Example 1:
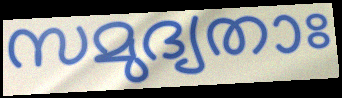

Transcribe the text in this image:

സമുദ്യതാഃ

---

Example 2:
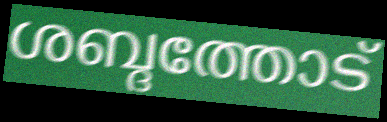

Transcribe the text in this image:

ശബ്ദത്തോട്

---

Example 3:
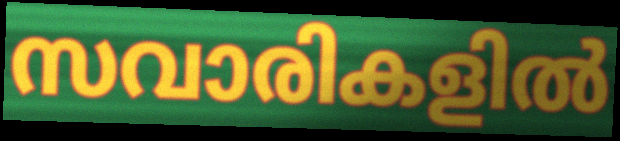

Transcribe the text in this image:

സവാരികളിൽ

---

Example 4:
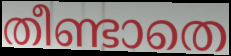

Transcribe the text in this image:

തീണ്ടാതെ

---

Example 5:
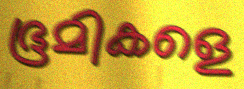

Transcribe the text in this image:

ഭൂമികളെ